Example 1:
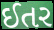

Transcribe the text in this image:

ઈતર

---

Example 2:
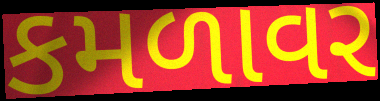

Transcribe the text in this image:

કમળાવર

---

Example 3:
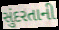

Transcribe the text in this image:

સુંદરતાની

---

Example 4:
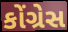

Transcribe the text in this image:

કોંગ્રેસ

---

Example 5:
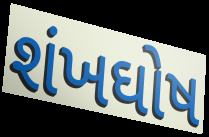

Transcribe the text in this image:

શંખઘોષ